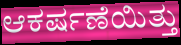
ಆಕರ್ಷಣೆಯಿತ್ತು